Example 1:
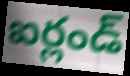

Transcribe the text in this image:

ఐర్లండ్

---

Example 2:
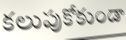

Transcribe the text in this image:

కలుపుకోకుండా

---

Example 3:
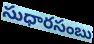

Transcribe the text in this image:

సుధారసంబు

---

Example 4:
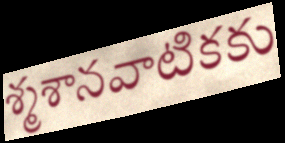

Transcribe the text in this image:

శ్మశానవాటికకు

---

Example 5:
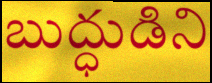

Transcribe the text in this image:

బుద్ధుడిని